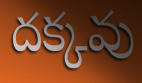
దక్కవు